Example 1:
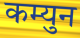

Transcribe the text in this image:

कम्युन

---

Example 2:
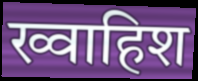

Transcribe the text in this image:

ख्वाहिश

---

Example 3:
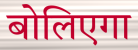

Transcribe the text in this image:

बोलिएगा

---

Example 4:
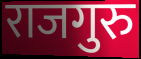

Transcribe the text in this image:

राजगुरु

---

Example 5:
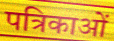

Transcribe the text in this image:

पत्रिकाओं